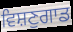
ਵਿਸ਼ਣੁਗਾਡ